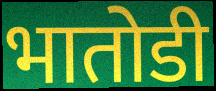
भातोडी